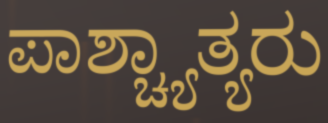
ಪಾಶ್ಚ್ಯಾತ್ಯರು